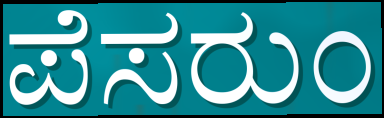
ಪೆಸರುಂ